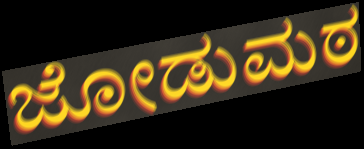
ಜೋಡುಮಠ